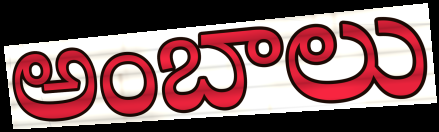
అంబాలు